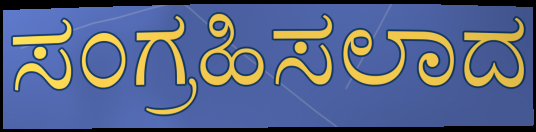
ಸಂಗ್ರಹಿಸಲಾದ